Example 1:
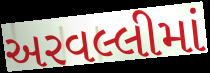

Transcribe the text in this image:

અરવલ્લીમાં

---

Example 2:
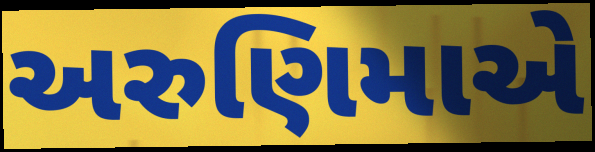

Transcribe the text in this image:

અરુણિમાએ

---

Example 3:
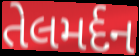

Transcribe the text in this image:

તેલમર્દન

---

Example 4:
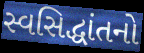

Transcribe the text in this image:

સ્વસિદ્ધાંતનો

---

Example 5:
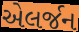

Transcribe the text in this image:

એલર્જન